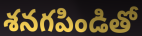
శనగపిండితో